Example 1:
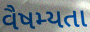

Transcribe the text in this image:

વૈષમ્યતા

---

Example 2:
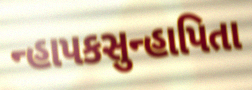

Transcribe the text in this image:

ન્હાપકસુન્હાપિતા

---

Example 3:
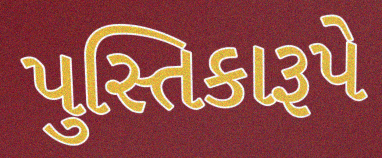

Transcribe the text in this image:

પુસ્તિકારૂપે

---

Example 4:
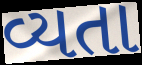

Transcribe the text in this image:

વ્યતા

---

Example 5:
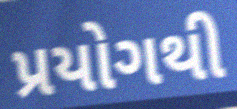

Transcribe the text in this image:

પ્રયોગથી